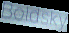
Boldsky